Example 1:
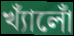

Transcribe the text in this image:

খ্যাঁলোঁ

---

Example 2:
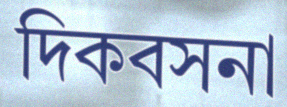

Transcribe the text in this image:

দিকবসনা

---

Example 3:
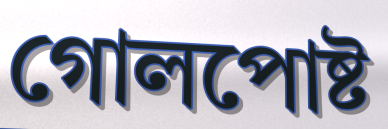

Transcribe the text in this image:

গোলপোষ্ট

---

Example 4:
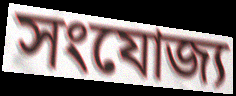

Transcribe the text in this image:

সংযোজ্য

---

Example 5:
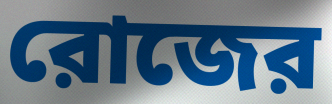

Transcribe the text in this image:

রোজের